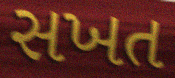
સખત